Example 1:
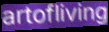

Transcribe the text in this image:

artofliving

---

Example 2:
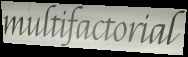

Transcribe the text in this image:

multifactorial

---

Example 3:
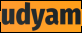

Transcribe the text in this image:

udyam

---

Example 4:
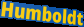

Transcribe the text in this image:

Humboldt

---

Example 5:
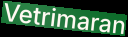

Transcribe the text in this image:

Vetrimaran